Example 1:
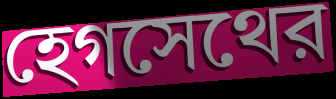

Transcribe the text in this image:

হেগসেথের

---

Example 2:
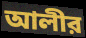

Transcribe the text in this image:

আলীর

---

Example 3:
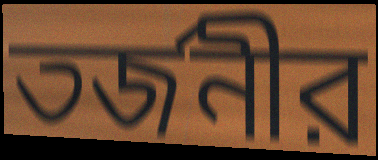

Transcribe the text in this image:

তর্জনীর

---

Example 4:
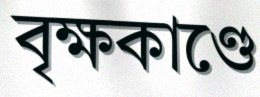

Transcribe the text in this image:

বৃক্ষকাণ্ডে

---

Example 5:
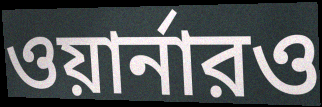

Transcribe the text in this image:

ওয়ার্নারও